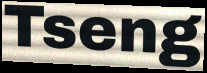
Tseng